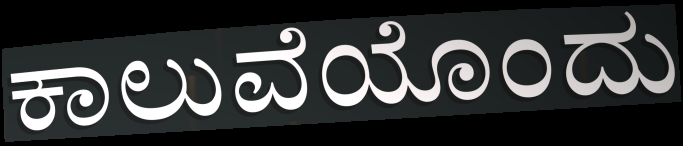
ಕಾಲುವೆಯೊಂದು